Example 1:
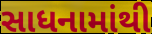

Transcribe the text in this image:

સાધનામાંથી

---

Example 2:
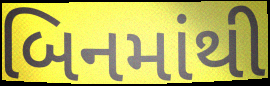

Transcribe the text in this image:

બિનમાંથી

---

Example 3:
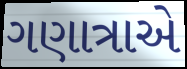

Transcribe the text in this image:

ગણાત્રાએ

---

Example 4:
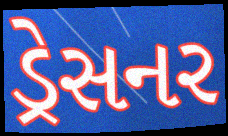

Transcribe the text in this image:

ડ્રેસનર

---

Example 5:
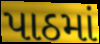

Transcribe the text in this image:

પાઠમાં